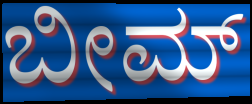
ಬೀಮ್